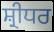
ਸ਼੍ਰੀਧਰ